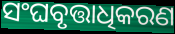
ସଂଘବୃତ୍ତାଧିକରଣ